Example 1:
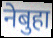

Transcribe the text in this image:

नेबुहा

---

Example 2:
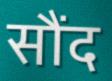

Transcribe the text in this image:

सौंद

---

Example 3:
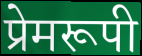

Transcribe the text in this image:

प्रेमरूपी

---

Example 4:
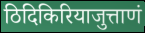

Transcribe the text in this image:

ठिदिकिरियाजुत्ताणं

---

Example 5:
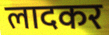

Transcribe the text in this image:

लादकर